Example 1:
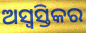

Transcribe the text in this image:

ଅସ୍ୱସ୍ତିକର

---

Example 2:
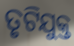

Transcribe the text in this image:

ତୃଟିଯୁକ୍ତ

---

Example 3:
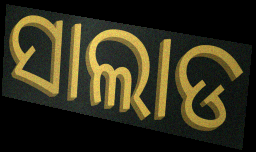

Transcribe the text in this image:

ସାଲାଡ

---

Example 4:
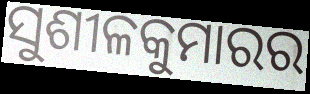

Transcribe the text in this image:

ସୁଶୀଳକୁମାରର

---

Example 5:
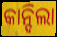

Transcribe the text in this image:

କାନ୍ଦିଲା